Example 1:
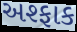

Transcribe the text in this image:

અશ્ફાક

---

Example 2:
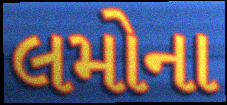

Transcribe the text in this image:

લમોના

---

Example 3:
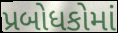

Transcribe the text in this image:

પ્રબોધકોમાં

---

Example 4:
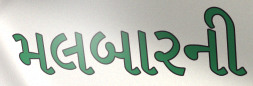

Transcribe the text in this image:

મલબારની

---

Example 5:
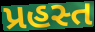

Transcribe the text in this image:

પ્રહસ્ત